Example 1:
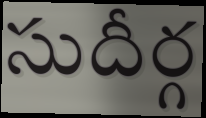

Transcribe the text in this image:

సుదీర్గ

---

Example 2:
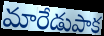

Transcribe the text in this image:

మారేడుపాక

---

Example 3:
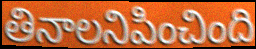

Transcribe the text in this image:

తినాలనిపించింది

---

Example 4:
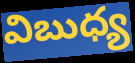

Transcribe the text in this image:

విబుధ్య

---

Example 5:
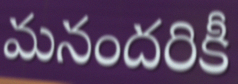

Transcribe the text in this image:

మనందరికీ